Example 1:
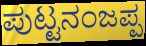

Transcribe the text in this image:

ಪುಟ್ಟನಂಜಪ್ಪ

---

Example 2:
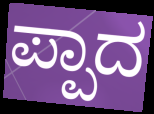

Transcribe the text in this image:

ಪ್ಪಾದ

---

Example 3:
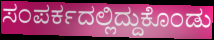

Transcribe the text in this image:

ಸಂಪರ್ಕದಲ್ಲಿದ್ದುಕೊಂಡು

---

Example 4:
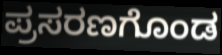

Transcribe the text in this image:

ಪ್ರಸರಣಗೊಂಡ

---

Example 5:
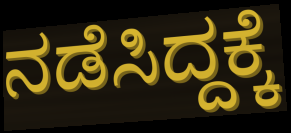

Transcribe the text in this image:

ನಡೆಸಿದ್ದಕ್ಕೆ